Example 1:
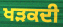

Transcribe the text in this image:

ਖੜਕਦੀ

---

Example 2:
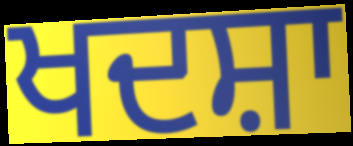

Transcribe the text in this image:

ਖਦਸ਼ਾ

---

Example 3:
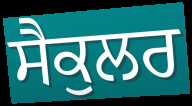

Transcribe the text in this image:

ਸੈਕੁਲਰ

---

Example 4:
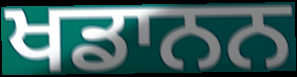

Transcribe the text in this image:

ਖਡਾਨਨ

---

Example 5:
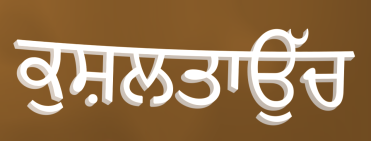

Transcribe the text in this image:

ਕੁਸ਼ਲਤਾਉੱਚ